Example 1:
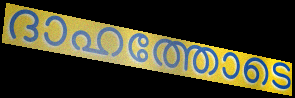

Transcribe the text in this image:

ദാഹത്തോടെ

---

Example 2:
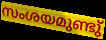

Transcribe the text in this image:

സംശയമുണ്ടു്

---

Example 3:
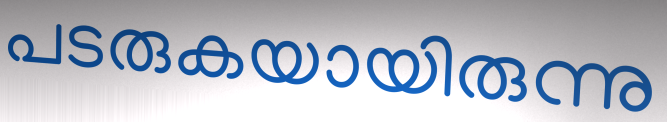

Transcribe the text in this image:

പടരുകയായിരുന്നു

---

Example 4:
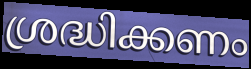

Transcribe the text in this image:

ശ്രദ്ധിക്കണം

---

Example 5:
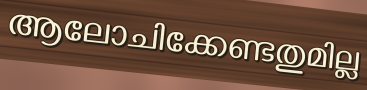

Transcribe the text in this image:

ആലോചിക്കേണ്ടതുമില്ല